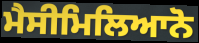
ਮੈਸੀਮਿਲਿਆਨੋ